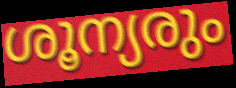
ശൂന്യരും